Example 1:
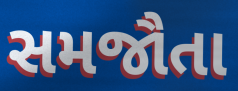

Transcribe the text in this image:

સમજૌતા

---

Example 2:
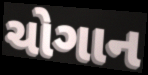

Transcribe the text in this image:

ચોગાન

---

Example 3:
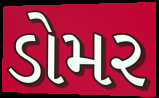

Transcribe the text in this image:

ડોમર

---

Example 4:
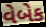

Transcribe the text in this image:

વેબેક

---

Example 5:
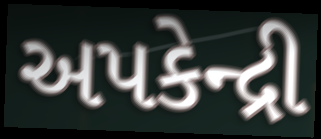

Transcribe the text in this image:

અપકેન્દ્રી